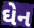
ઘેન